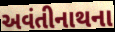
અવંતીનાથના